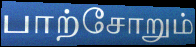
பாற்சோறும்